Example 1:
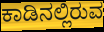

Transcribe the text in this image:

ಕಾಡಿನಲ್ಲಿರುವ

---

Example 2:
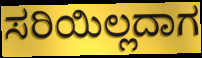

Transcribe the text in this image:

ಸರಿಯಿಲ್ಲದಾಗ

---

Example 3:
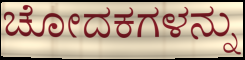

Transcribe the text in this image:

ಚೋದಕಗಳನ್ನು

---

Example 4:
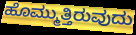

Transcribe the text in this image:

ಹೊಮ್ಮುತ್ತಿರುವುದು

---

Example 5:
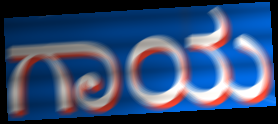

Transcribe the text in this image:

ಗಾಯ